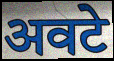
अवटे